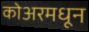
कोअरमधून